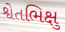
શ્વેતભિક્ષુ